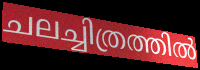
ചലച്ചിത്രത്തിൽ